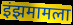
इंझमामला